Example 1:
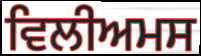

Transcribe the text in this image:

ਵਿਲੀਅਮਸ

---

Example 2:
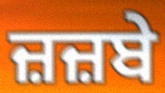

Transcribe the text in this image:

ਜ਼ਜ਼ਬੇ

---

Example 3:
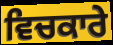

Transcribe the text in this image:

ਵਿਚਕਾਰੇ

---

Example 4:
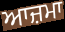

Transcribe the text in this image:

ਆਜ਼ਮਾ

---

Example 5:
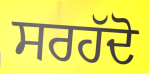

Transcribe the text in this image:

ਸਰਹੱਦੋ